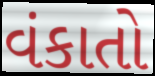
વંકાતો